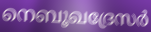
നെബൂഖദ്രേസർ